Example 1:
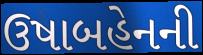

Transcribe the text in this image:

ઉષાબહેનની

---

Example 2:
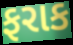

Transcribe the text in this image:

ફરાક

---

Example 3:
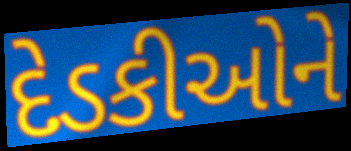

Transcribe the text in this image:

દેડકીઓને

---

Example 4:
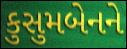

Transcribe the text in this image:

કુસુમબેનને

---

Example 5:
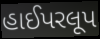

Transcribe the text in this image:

હાઈપરલૂપ